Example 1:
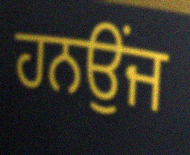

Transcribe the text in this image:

ਹਨਉਂਜ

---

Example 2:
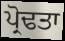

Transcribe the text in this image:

ਪ੍ਰੋਢਤਾ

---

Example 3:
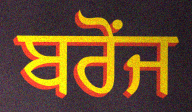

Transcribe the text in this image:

ਬਰੋਂਜ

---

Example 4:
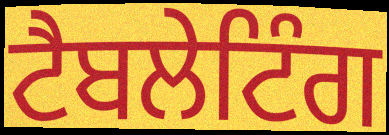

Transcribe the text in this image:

ਟੈਬਲੇਟਿੰਗ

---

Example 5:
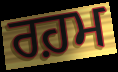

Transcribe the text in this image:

ਰਹ਼ਮ